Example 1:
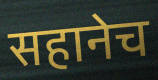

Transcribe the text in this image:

सहानेच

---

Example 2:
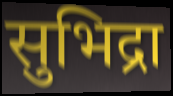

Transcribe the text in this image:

सुभिद्रा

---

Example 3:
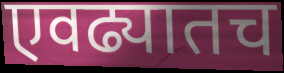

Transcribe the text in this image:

एवढ्यातच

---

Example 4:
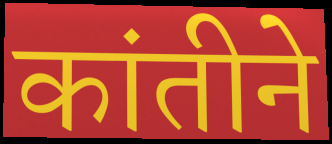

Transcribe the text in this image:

कांतीने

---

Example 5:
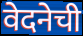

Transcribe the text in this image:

वेदनेची